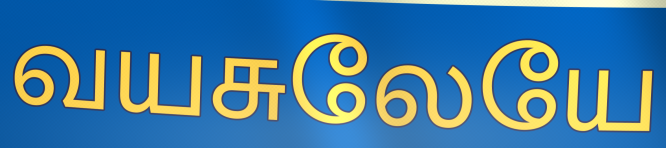
வயசுலேயே